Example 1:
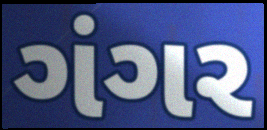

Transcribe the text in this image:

ગંગર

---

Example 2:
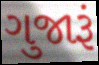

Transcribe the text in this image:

ગુજારૂં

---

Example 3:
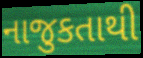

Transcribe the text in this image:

નાજુકતાથી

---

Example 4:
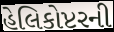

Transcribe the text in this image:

હેલિકોપ્ટરની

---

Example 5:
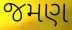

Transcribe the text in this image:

જમણ